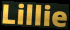
Lillie